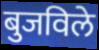
बुजविले